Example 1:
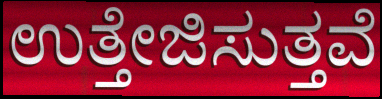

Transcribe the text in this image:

ಉತ್ತೇಜಿಸುತ್ತವೆ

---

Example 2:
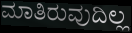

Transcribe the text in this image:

ಮಾತಿರುವುದಿಲ್ಲ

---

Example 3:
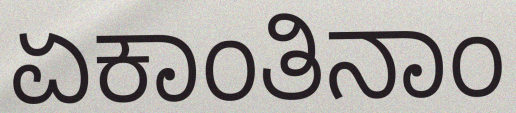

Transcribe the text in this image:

ಏಕಾಂತಿನಾಂ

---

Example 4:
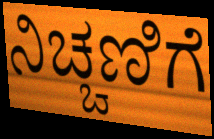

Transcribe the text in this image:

ನಿಚ್ಚಣಿಗೆ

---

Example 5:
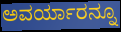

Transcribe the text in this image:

ಅವರ್ಯಾರನ್ನೂ